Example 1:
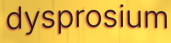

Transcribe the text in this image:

dysprosium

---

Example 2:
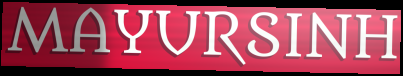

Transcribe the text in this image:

MAYURSINH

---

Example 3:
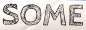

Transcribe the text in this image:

SOME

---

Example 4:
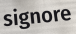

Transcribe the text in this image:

signore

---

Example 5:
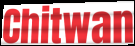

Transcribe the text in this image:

Chitwan